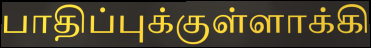
பாதிப்புக்குள்ளாக்கி